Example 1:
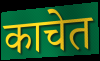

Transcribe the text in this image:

काचेत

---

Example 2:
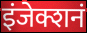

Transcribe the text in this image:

इंजेक्शनं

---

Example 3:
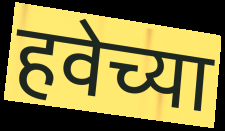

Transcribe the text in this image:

हवेच्या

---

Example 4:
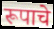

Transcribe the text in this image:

रूपाचे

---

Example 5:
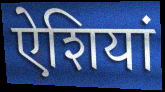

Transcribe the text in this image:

ऐशियां